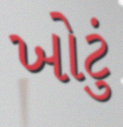
ખોટું